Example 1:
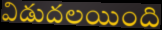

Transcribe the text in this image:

విడుదలయింది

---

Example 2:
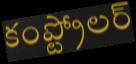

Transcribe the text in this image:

కంప్ట్రోలర్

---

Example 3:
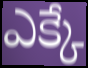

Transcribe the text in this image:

ఎక్కే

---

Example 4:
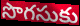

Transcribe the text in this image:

సొగసుకు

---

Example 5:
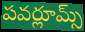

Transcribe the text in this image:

పవర్లూమ్స్